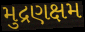
મુદ્રણક્ષમ